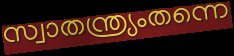
സ്വാതന്ത്ര്യംതന്നെ